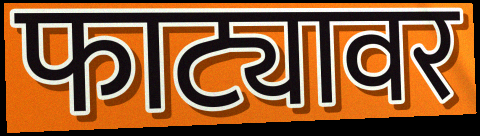
फाट्यावर